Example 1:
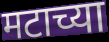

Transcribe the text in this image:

मटाच्या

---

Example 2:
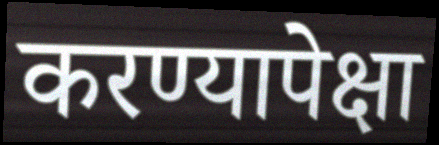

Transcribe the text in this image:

करण्यापेक्षा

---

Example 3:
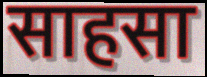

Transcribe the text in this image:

साहसा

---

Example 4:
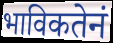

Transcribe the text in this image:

भाविकतेनं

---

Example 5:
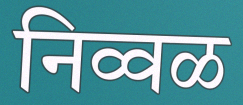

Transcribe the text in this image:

निव्वळ